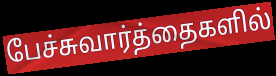
பேச்சுவார்த்தைகளில்